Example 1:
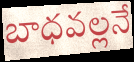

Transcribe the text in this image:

బాధవల్లనే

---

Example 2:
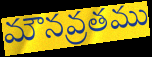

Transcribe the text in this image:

మౌనవ్రతము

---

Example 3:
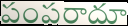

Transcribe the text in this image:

పంపరాదూ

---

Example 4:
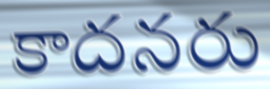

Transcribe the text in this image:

కాదనరు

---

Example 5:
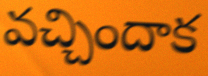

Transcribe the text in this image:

వచ్చిందాక